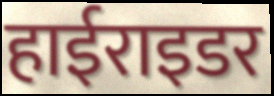
हाईराइडर